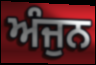
ਅੰਜੁਨ